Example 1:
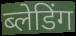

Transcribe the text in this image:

ब्लेडिंग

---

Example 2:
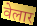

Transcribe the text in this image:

वेलार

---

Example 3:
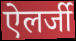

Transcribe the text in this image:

ऐलर्जी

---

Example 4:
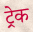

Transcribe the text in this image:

ट्रेक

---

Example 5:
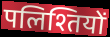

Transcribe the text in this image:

पलिश्तियों